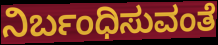
ನಿರ್ಬಂಧಿಸುವಂತೆ